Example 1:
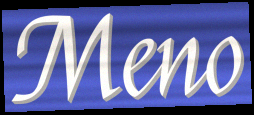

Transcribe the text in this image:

Meno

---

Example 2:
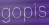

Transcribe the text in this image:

gopis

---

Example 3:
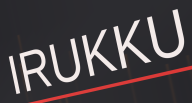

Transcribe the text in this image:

IRUKKU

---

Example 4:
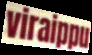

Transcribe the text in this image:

viraippu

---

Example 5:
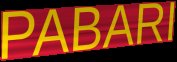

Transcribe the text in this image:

PABARI